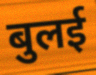
बुलई